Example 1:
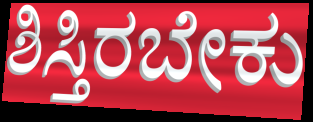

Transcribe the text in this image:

ಶಿಸ್ತಿರಬೇಕು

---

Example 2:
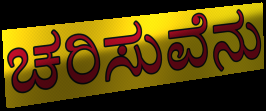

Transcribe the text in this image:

ಚರಿಸುವೆನು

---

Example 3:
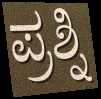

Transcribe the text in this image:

ಪ್ರಶ್ನಿ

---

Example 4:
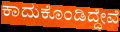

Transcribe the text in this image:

ಕಾದುಕೊಂಡಿದ್ದೇವೆ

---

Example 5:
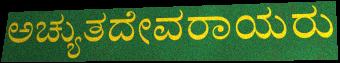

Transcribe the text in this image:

ಅಚ್ಯುತದೇವರಾಯರು